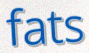
fats